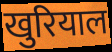
खुरियाल